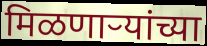
मिळणाऱ्यांच्या